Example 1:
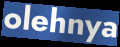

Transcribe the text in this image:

olehnya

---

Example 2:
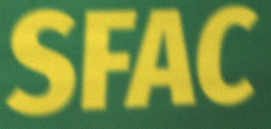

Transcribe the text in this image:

SFAC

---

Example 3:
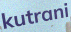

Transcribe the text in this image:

kutrani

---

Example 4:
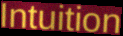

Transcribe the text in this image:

Intuition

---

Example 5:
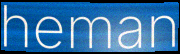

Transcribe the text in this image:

heman